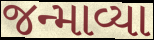
જન્માવ્યા